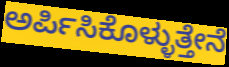
ಅರ್ಪಿಸಿಕೊಳ್ಳುತ್ತೇನೆ